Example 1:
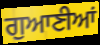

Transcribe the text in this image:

ਗੁਆਣੀਆਂ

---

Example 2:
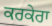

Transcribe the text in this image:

ਕਰਕੇਰਾ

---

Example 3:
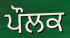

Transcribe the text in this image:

ਪੌਲਕ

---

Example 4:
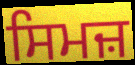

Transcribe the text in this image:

ਸਿਮਜ਼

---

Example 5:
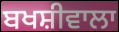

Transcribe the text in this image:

ਬਖਸ਼ੀਵਾਲਾ